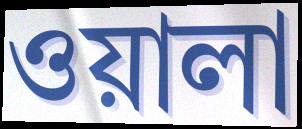
ওয়ালা